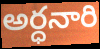
అర్ధనారి